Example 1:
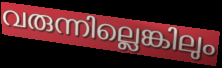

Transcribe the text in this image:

വരുന്നില്ലെങ്കിലും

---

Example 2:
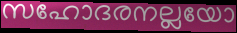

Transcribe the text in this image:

സഹോദരനല്ലയോ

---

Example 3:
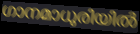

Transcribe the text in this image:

ഗാനമാധുരിയിൽ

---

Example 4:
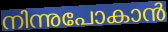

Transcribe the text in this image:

നിന്നുപോകാൻ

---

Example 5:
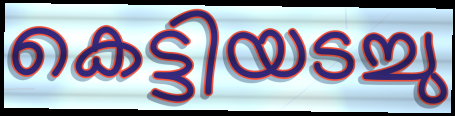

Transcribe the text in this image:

കെട്ടിയടച്ചു